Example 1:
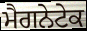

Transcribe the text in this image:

ਮੈਗਨੇਟੇਕ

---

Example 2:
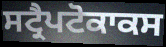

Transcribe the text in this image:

ਸਟ੍ਰੈਪਟੋਕਾਕਸ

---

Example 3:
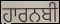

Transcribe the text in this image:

ਹਾਰਨਬੀ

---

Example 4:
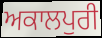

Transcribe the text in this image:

ਅਕਾਲਪੁਰੀ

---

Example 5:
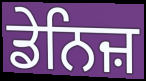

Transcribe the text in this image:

ਡੇਨਿਜ਼